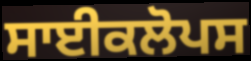
ਸਾਈਕਲੋਪਸ